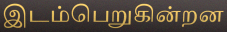
இடம்பெறுகின்றன